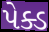
પેક્ડ